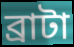
ব্রাটা